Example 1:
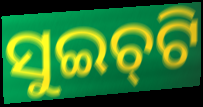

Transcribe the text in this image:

ସୁଇଚ୍‌ଟି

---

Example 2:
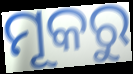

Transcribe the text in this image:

ମୂକରୁ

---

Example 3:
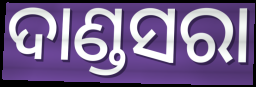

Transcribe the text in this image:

ଦାଣ୍ଡସରା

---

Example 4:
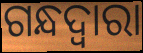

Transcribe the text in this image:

ଗନ୍ଧଦ୍ୱାରା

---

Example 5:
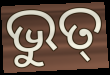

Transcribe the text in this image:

ଭୁତ୍